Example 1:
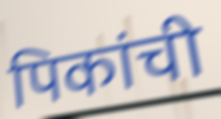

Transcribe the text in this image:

पिकांची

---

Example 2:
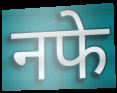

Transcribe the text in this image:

नफे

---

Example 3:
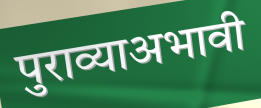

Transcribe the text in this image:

पुराव्याअभावी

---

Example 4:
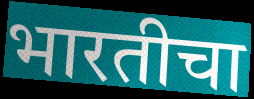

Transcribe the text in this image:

भारतीचा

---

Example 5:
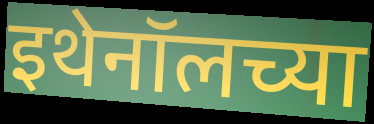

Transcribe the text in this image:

इथेनॉलच्या